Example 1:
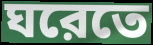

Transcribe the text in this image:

ঘরেতে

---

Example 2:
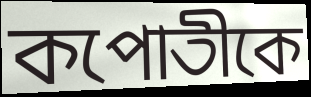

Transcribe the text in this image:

কপোতীকে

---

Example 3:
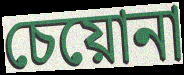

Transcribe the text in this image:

চেয়োনা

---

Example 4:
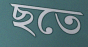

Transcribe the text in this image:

ছতে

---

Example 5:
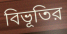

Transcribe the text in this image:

বিভূতির